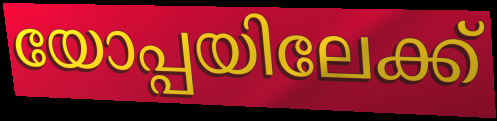
യോപ്പയിലേക്ക്